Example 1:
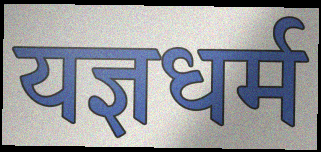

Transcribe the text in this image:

यज्ञधर्म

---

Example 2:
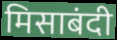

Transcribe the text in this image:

मिसाबंदी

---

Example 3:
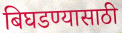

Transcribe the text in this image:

बिघडण्यासाठी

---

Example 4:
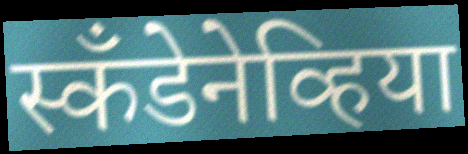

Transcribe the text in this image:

स्कॅंडेनेव्हिया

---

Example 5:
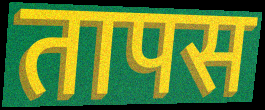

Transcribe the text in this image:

तापस